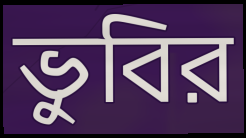
ভুবির